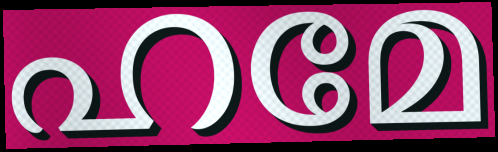
ഹമേ